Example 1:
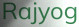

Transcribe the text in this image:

Rajyog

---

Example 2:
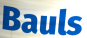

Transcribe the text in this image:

Bauls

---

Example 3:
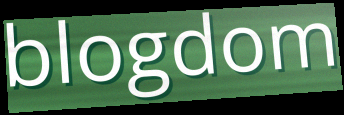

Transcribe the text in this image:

blogdom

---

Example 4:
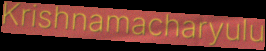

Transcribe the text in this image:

Krishnamacharyulu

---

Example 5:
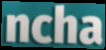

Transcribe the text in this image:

ncha